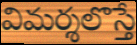
విమర్శలొస్తే